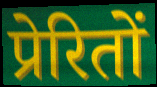
प्रेरितों